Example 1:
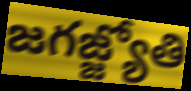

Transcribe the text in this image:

జగజ్జ్యోతి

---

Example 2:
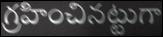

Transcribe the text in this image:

గ్రహించినట్టుగా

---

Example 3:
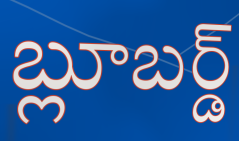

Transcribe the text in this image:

బ్లూబర్డ్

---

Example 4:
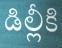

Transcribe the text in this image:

డిల్లీకి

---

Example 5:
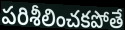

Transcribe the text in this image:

పరిశీలించకపోతే